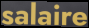
salaire